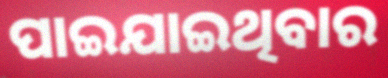
ପାଇଯାଇଥିବାର